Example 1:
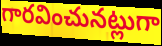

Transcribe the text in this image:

గారవించునట్లుగా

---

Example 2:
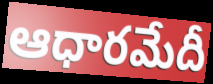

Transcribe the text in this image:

ఆధారమేదీ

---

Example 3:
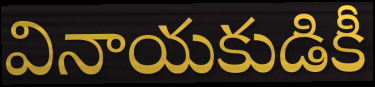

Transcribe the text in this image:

వినాయకుడికీ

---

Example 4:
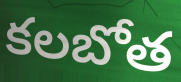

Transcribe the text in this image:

కలబోత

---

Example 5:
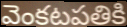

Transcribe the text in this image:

వెంకటపతికి